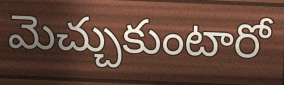
మెచ్చుకుంటారో